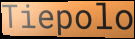
Tiepolo